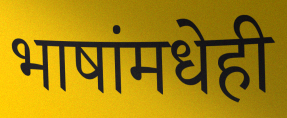
भाषांमधेही